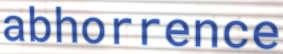
abhorrence